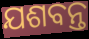
ଯଶବନ୍ତ